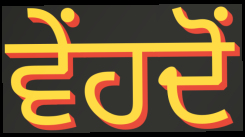
ਵੇਂਹਦੋਂ